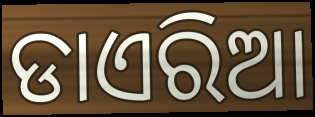
ଡାଏରିଆ